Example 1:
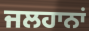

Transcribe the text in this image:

ਜਲਹਾਨਾਂ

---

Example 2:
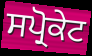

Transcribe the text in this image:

ਸਪ੍ਰੋਕੇਟ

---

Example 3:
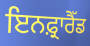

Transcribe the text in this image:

ਇਨਫ਼੍ਰਾਰੈੱਡ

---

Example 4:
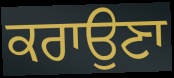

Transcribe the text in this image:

ਕਰਾਉਣਾ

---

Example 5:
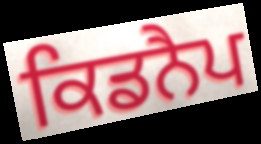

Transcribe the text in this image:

ਕਿਡਨੈਪ